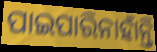
ପାଇପାରିନାହାଁନ୍ତି